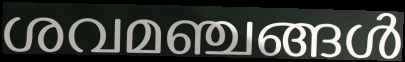
ശവമഞ്ചങ്ങൾ